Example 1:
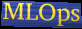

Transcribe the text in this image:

MLOps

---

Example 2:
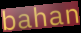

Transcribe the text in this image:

bahan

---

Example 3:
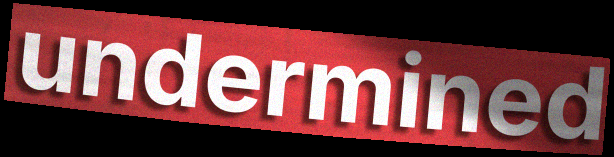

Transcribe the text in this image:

undermined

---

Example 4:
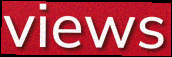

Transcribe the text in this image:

views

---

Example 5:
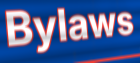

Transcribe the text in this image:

Bylaws